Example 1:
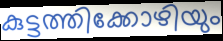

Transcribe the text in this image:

കുട്ടത്തിക്കോഴിയും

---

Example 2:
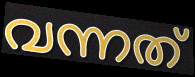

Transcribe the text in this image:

വന്നത്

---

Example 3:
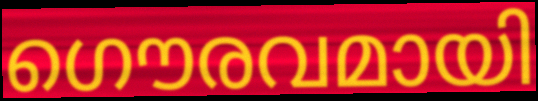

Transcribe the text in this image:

ഗൌരവമായി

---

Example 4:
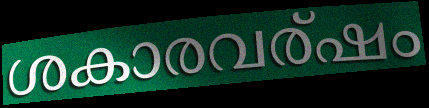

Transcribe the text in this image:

ശകാരവര്ഷം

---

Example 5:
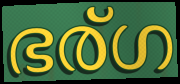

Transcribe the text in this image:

ഭര്ഗ